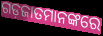
ଗଡ଼ଜାତମାନଙ୍କରେ